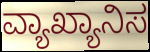
ವ್ಯಾಖ್ಯಾನಿಸ